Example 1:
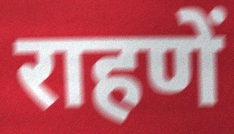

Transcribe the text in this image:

राहणें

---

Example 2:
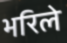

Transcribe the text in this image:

भरिले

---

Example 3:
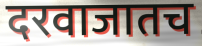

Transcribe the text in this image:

दरवाजातच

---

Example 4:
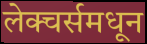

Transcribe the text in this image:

लेक्चर्समधून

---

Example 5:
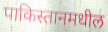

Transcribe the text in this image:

पाकिस्तानमधील